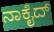
ನಾಕೈದ್